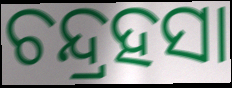
ଚନ୍ଦ୍ରହସା